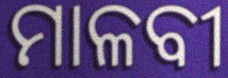
ମାଳବୀ